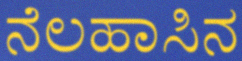
ನೆಲಹಾಸಿನ